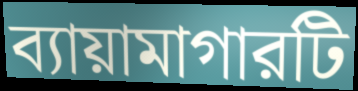
ব্যায়ামাগারটি